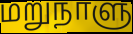
மறுநாளு